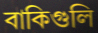
বাকিগুলি